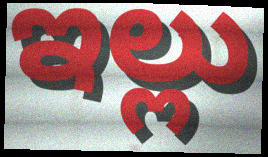
ఇల్లు